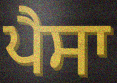
ਪੈਸਾ